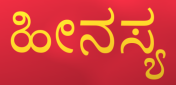
ಹೀನಸ್ಯ